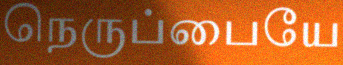
நெருப்பையே